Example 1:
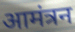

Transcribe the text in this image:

आमंत्रन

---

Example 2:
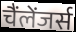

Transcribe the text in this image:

चैंलेंजर्स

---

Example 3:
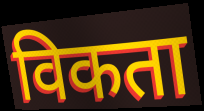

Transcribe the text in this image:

विकता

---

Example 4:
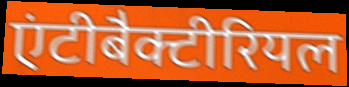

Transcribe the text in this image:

एंटीबैक्टीरियल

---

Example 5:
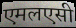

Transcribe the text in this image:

एमलएसी